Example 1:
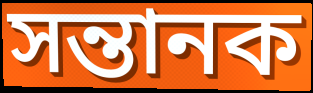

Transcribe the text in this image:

সন্তানক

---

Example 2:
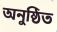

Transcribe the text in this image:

অনুষ্ঠিত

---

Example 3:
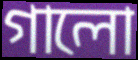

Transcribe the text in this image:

গালো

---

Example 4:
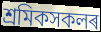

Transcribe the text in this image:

শ্ৰমিকসকলৰ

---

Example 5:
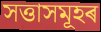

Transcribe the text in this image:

সত্তাসমূহৰ